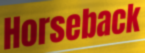
Horseback